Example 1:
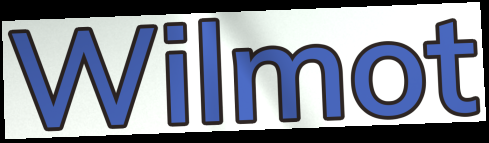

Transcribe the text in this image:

Wilmot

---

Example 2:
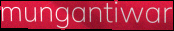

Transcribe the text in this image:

mungantiwar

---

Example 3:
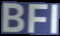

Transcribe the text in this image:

BFI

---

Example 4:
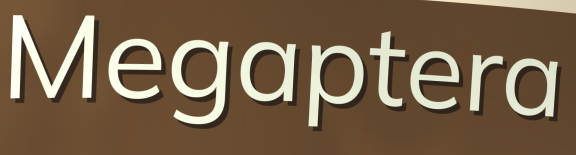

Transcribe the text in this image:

Megaptera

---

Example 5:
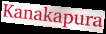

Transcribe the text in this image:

Kanakapura